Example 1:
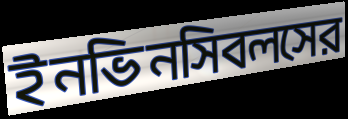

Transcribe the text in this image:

ইনভিনসিবলসের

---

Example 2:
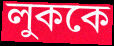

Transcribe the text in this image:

লুককে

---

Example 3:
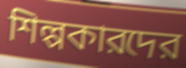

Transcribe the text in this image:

শিল্পকারদের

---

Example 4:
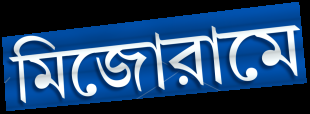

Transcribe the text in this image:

মিজোরামে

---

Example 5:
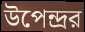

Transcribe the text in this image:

উপেন্দ্রর